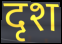
दृश